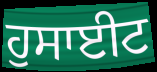
ਹੁਸਾਈਟ